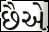
છૈએ